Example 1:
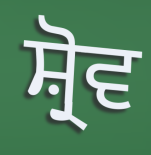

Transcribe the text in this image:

ਸ਼੍ਰੋਵ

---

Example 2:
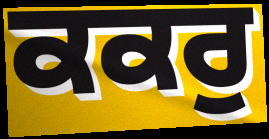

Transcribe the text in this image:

ਕਕਰੁ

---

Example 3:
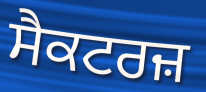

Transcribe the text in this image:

ਸੈਕਟਰਜ਼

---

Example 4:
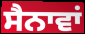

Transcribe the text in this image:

ਸੈਨਾਵਾਂ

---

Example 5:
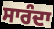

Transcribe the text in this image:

ਸਾਰੰਦਾ